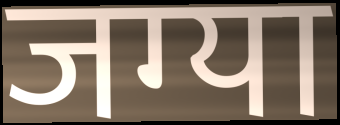
जग्या